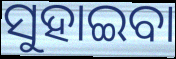
ସୁହାଇବା